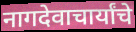
नागदेवाचार्यांचे